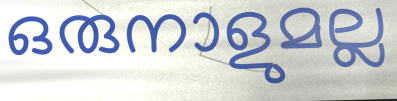
ഒരുനാളുമല്ല